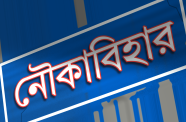
নৌকাবিহার